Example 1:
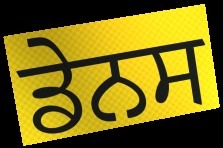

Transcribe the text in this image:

ਡੇਨਸ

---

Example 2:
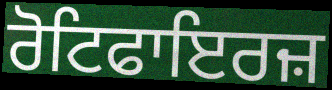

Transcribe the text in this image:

ਰੋਟਿਫਾਇਰਜ਼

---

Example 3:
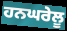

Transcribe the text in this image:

ਹਨਘਰੇਲੂ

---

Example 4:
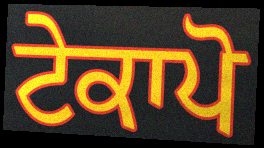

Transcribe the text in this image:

ਟੇਕਾਪੋ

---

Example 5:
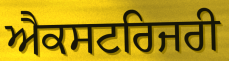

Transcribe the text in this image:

ਐਕਸਟਰਿਜਰੀ